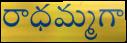
రాధమ్మగా